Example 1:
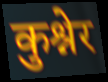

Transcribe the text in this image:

कुश्नेर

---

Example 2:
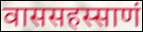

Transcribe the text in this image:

वाससहस्साणं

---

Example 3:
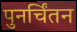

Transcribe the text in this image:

पुनर्चिंतन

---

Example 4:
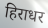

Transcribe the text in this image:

हिराधर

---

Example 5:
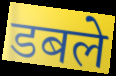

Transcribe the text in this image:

डबले